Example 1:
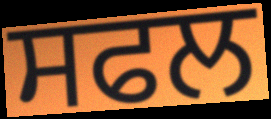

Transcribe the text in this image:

ਸਫਲ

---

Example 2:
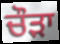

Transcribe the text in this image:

ਚੌੜਾ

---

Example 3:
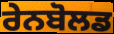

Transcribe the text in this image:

ਰੇਨਬੋਲਡ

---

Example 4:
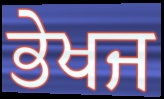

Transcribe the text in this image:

ਭੇਖਜ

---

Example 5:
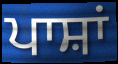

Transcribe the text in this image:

ਪਾਸ਼ਾਂ